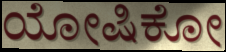
ಯೋಷಿಕೋ